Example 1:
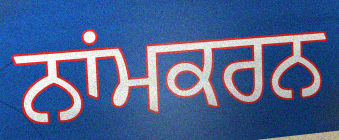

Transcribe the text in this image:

ਨਾਂਮਕਰਨ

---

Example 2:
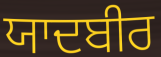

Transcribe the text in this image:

ਯਾਦਬੀਰ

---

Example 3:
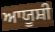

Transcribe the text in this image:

ਆਯੂਸ਼ੀ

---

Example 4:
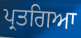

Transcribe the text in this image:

ਪ੍ਰਤਗਿਆ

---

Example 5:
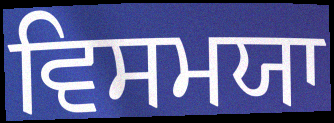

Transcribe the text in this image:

ਵਿਸਮਯਾ